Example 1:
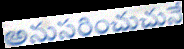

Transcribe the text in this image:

అనుసరించుచునే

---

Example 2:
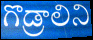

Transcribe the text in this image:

గొడ్రాలిని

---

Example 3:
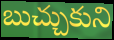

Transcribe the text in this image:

బుచ్చుకుని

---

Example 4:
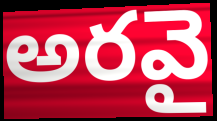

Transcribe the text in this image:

అరవై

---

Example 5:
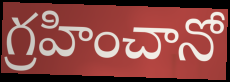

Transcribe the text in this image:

గ్రహించానో